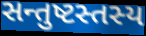
સન્તુષ્ટસ્તસ્ય